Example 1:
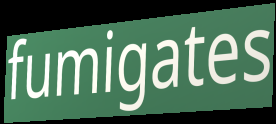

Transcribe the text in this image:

fumigates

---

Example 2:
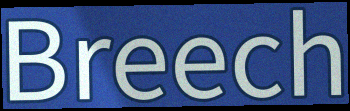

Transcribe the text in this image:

Breech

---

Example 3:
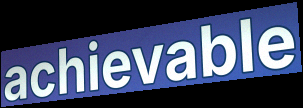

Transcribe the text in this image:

achievable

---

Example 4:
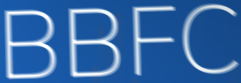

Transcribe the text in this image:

BBFC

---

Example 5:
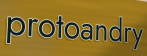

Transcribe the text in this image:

protoandry